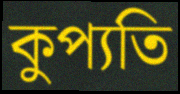
কুপ্যতি